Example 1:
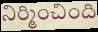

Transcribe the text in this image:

నిర్మించింది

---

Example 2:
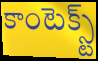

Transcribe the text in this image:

కాంటెక్స్ట్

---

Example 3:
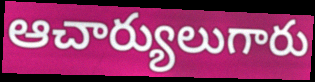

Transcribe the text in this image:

ఆచార్యులుగారు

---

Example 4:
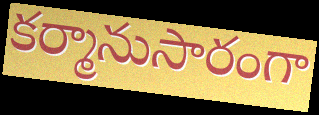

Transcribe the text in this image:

కర్మానుసారంగా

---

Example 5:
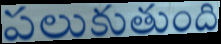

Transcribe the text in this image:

పలుకుతుంది